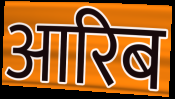
आरिब